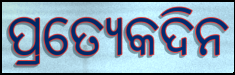
ପ୍ରତ୍ୟେକଦିନ